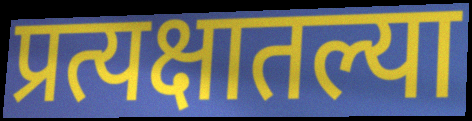
प्रत्यक्षातल्या